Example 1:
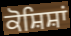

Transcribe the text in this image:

ਕੋਸ਼ਿਸ਼ਾਂ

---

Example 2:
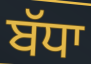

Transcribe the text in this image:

ਬੱਧਾ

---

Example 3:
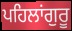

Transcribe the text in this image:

ਪਹਿਲਾਂਗੁਰੂ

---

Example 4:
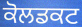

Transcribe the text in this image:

ਕੋਲਡਕਟ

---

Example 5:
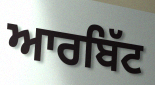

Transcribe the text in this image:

ਆਰਬਿੱਟ